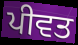
ਪੀਵਤ